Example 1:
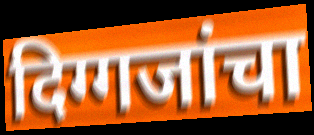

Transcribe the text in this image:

दिग्गजांचा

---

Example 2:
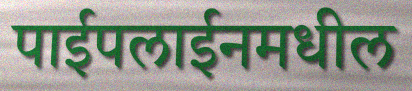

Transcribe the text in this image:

पाईपलाईनमधील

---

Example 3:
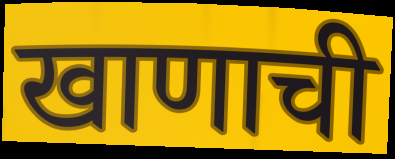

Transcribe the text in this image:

खाणाची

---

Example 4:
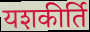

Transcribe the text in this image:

यशकीर्ति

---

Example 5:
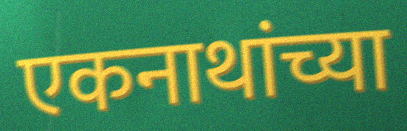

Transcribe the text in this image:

एकनाथांच्या